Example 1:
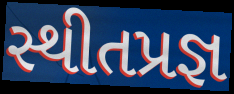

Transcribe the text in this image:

સ્થીતપ્રજ્ઞ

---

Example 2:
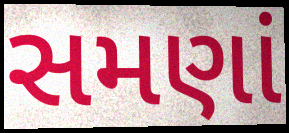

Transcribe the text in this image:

સમણાં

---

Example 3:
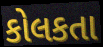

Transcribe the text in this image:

કોલકતા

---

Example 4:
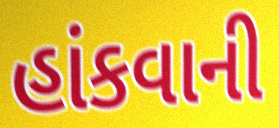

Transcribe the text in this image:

હાંકવાની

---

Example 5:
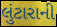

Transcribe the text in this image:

લુંટારાની